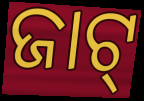
ଜାଟ୍